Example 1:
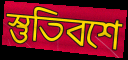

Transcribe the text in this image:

স্তুতিবশে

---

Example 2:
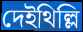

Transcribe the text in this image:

দেইথিল্লি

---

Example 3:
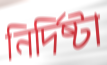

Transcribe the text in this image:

নির্দিষ্টা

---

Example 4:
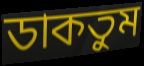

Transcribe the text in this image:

ডাকতুম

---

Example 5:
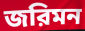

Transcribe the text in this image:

জরিমন